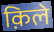
क़िले